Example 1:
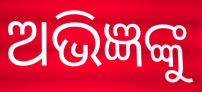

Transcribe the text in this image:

ଅଭିଜ୍ଞଙ୍କୁ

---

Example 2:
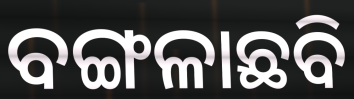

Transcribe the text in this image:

ବଙ୍ଗଳାଛବି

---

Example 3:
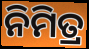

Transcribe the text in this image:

ନିମିତ୍ର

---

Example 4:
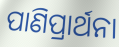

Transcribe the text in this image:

ପାଣିପ୍ରାର୍ଥନା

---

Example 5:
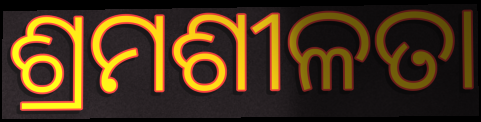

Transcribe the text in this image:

ଶ୍ରମଶୀଳତା